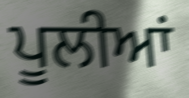
ਪੂਲੀਆਂ